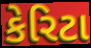
કેરિટા